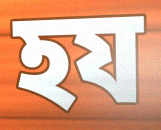
হয